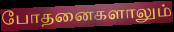
போதனைகளாலும்